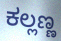
ಕಲ್ಲಣ್ಣ